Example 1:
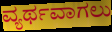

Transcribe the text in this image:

ವ್ಯರ್ಥವಾಗಲು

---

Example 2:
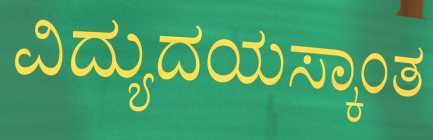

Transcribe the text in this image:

ವಿದ್ಯುದಯಸ್ಕಾಂತ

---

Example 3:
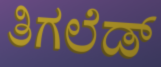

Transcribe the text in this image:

ತಿಗಲೆಡ್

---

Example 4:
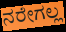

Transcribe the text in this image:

ನರೇಗಲ್ಲ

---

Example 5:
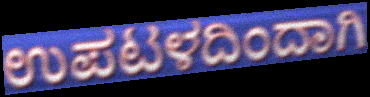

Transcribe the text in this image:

ಉಪಟಳದಿಂದಾಗಿ